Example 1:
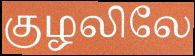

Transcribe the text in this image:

குழலிலே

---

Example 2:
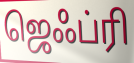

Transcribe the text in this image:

ஜெஃப்ரி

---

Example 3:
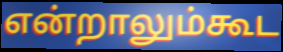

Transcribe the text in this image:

என்றாலும்கூட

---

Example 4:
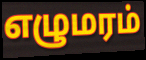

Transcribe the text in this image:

எழுமரம்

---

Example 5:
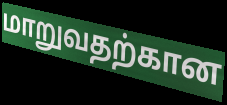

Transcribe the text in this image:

மாறுவதற்கான